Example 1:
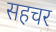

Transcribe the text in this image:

सहचर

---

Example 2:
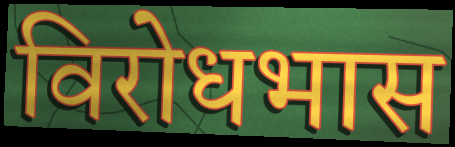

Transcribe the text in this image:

विरोधभास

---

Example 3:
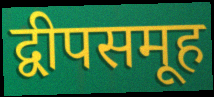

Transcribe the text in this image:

द्वीपसमूह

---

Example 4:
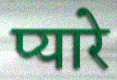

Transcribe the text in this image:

प्यारे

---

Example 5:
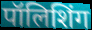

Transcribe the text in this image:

पॉलिशिंग